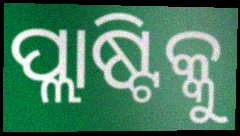
ପ୍ଲାଷ୍ଟିକ୍କୁ